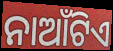
ନାଆଁଟିଏ